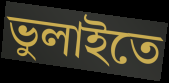
ভুলাইতে